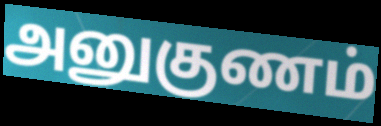
அனுகுணம்